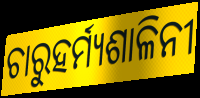
ଚାରୁହର୍ମ୍ୟଶାଳିନୀ